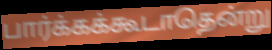
பார்க்கக்கூடாதென்று